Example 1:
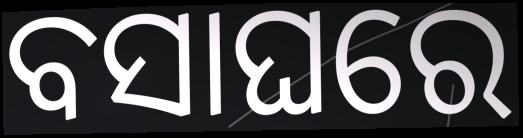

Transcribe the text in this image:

ବସାଘରେ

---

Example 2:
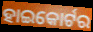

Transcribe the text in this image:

ହାଇକୋର୍ଟର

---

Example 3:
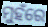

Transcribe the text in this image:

ମୁହଁରେ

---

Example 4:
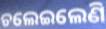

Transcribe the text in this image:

ଚଲେଇଲେଣି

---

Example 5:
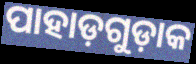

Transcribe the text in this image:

ପାହାଡ଼ଗୁଡ଼ାକ